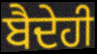
ਬੈਦੇਹੀ